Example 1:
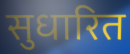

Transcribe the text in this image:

सुधारित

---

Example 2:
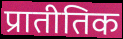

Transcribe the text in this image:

प्रातीतिक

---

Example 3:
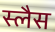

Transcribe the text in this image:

स्लैस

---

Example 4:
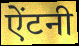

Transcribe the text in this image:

ऐंटनी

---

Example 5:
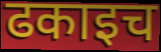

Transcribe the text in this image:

ढकाइच